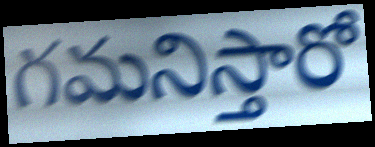
గమనిస్తారో